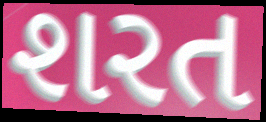
શરત